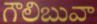
గౌలిబువా